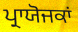
ਪ੍ਰਾਯੋਜਕਾਂ